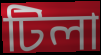
টিলা